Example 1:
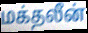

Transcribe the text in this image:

மக்தலீன்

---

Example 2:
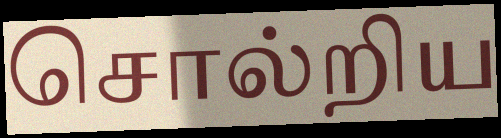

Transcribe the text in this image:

சொல்றிய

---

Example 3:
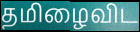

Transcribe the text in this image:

தமிழைவிட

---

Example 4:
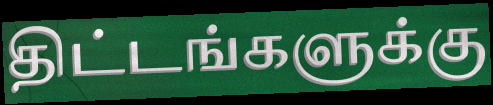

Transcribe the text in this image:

திட்டங்களுக்கு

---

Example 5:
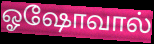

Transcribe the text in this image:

ஓஷோவால்